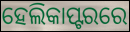
ହେଲିକାପ୍ଟରରେ